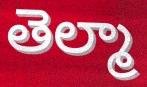
తెల్మా